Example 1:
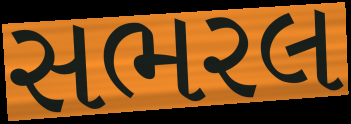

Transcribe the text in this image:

સભરલ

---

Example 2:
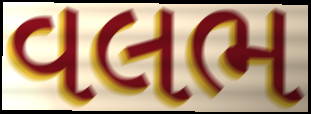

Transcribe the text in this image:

વલભ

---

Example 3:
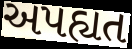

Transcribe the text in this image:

અપહ્યત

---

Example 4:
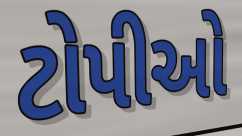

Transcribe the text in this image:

ટોપીઓ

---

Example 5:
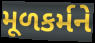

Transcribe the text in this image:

મૂળકર્મને